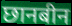
छानबीन